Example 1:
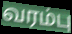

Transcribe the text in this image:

வரம்பு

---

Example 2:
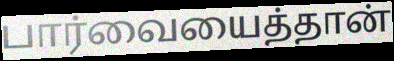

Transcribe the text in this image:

பார்வையைத்தான்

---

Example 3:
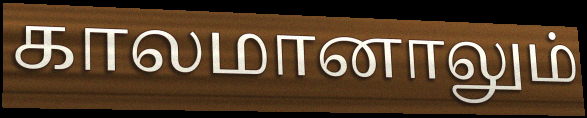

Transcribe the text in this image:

காலமானாலும்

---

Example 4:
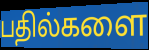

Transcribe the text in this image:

பதில்களை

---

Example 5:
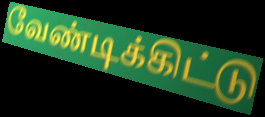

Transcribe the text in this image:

வேண்டிக்கிட்டு